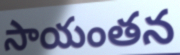
సాయంతన